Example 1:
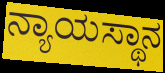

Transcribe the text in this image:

ನ್ಯಾಯಸ್ಥಾನ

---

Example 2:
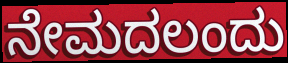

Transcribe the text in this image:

ನೇಮದಲಂದು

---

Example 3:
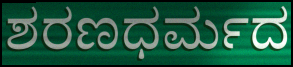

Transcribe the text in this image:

ಶರಣಧರ್ಮದ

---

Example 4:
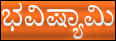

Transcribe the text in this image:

ಭವಿಷ್ಯಾಮಿ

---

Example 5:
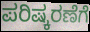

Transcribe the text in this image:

ಪರಿಷ್ಕರಣೆಗೆ